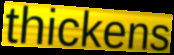
thickens